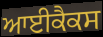
ਆਈਕੈਕਸ